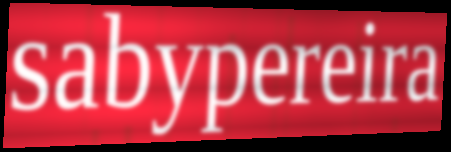
sabypereira